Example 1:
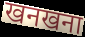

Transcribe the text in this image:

खनखना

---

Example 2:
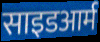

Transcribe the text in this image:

साइडआर्म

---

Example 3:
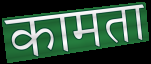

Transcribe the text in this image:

कामता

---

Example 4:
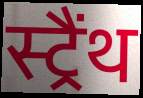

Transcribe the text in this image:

स्ट्रैंथ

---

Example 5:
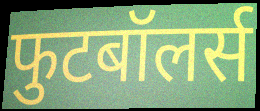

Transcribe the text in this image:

फुटबॉलर्स